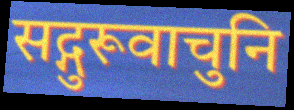
सद्गुरूवाचुनि